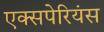
एक्सपेरियंस